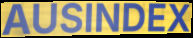
AUSINDEX